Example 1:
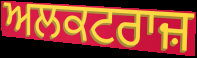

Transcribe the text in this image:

ਅਲਕਟਰਾਜ਼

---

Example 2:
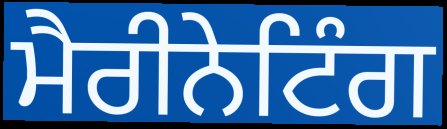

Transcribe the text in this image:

ਮੈਰੀਨੇਟਿੰਗ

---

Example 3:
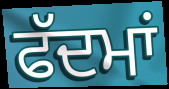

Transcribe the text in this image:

ਫੱਦਮਾਂ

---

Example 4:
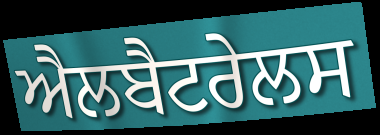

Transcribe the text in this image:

ਐਲਬੈਟਰੇਲਸ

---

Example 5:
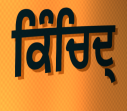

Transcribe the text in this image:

ਕਿੰਚਿਦ੍